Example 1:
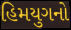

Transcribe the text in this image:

હિમયુગનો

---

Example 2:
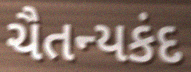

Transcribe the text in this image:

ચૈતન્યકંદ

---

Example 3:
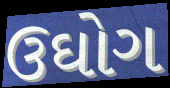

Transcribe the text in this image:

ઉઘોગ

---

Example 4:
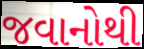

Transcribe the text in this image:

જવાનોથી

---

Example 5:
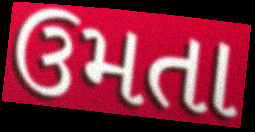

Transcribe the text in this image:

ઉમતા